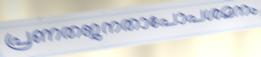
പ്രണതജനതാപോപശമനം